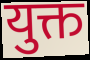
युक्त